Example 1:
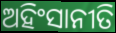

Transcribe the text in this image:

ଅହିଂସାନୀତି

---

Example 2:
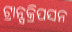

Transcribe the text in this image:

ଟ୍ରାନ୍ସକ୍ରିପସନ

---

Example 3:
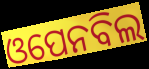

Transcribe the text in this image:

ଓପେନବିଲ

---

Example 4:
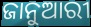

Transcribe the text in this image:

ଜାନୁଆରୀ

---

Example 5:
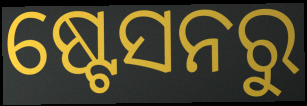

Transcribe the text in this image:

ଷ୍ଟେସନରୁ